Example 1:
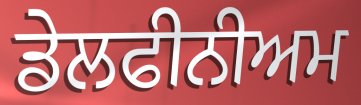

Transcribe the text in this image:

ਡੇਲਫੀਨੀਅਮ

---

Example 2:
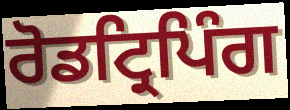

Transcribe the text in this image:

ਰੋਡਟ੍ਰਿਪਿੰਗ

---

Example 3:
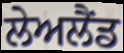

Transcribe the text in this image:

ਲੇਅਲੈਂਡ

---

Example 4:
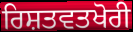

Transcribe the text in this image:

ਰਿਸ਼ਤਵਤਖੋਰੀ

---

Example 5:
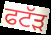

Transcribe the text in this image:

ਫਟੱੜ